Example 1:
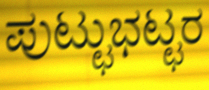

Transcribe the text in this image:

ಪುಟ್ಟುಭಟ್ಟರ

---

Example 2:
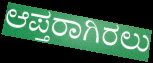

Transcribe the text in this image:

ಆಪ್ತರಾಗಿರಲು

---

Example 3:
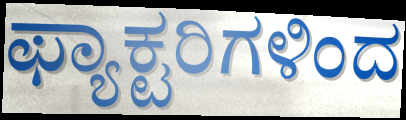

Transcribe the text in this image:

ಫ್ಯಾಕ್ಟರಿಗಳಿಂದ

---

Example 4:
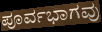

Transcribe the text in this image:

ಪೂರ್ವಭಾಗವು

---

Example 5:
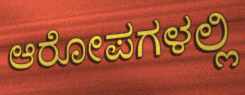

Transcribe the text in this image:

ಆರೋಪಗಳಲ್ಲಿ